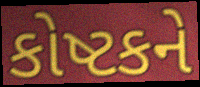
કોષ્ટકને